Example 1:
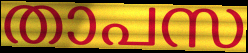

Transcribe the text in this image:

താപസ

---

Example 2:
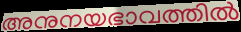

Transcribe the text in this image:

അനുനയഭാവത്തിൽ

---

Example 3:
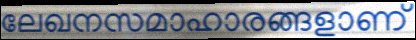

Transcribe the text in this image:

ലേഖനസമാഹാരങ്ങളാണ്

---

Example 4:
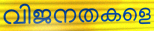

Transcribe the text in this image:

വിജനതകളെ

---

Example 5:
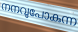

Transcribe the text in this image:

നനവുപോകുന്ന